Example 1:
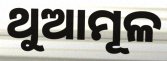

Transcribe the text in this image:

ଥୁଆମୂଳ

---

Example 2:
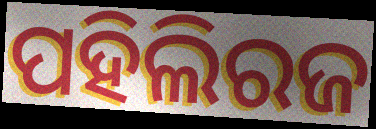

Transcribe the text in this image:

ପହିଲିରଜ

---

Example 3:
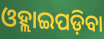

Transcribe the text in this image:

ଓହ୍ଲାଇପଡ଼ିବା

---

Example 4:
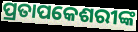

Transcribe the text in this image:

ପ୍ରତାପକେଶରୀଙ୍କ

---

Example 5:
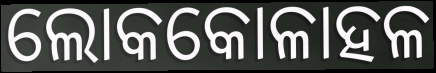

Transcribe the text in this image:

ଲୋକକୋଳାହଳ